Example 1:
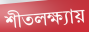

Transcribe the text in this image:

শীতলক্ষ্যায়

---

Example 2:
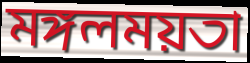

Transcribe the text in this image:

মঙ্গলময়তা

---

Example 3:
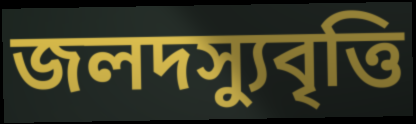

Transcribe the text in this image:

জলদস্যুবৃত্তি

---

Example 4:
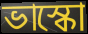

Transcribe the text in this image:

ভাস্কো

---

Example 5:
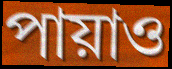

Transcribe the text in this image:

পায়াও